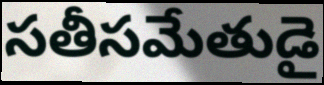
సతీసమేతుడై